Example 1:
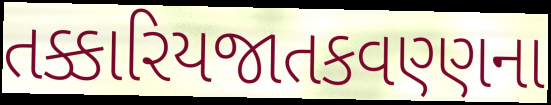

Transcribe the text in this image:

તક્કારિયજાતકવણ્ણના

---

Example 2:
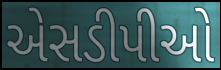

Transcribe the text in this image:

એસડીપીઓ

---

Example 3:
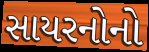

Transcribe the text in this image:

સાયરનોનો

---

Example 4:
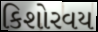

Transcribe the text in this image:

કિશોરવય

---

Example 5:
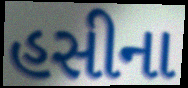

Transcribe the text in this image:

હસીના